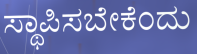
ಸ್ಥಾಪಿಸಬೇಕೆಂದು